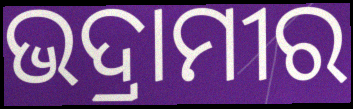
ଭଦ୍ରାମୀର